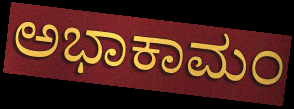
ಅಭಾಕಾಮಂ